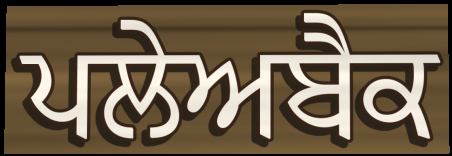
ਪਲੇਅਬੈਕ